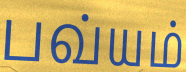
பவ்யம்